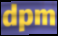
dpm